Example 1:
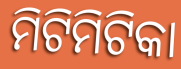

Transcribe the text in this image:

ମିଟିମିଟିକା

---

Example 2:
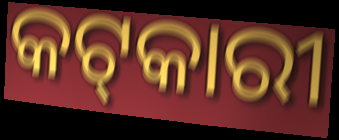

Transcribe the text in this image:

କଟ୍‌କାରୀ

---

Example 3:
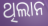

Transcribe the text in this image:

ଥିଲାନ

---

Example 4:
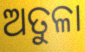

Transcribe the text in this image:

ଅତୁଳା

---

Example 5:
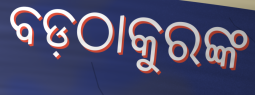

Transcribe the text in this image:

ବଡ଼ଠାକୁରଙ୍କ